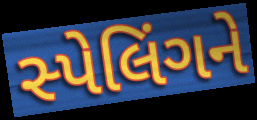
સ્પેલિંગને